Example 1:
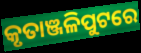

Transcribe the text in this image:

କୃତାଞ୍ଜଳିପୁଟରେ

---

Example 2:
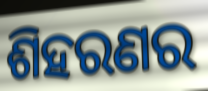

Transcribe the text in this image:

ଶିହରଣର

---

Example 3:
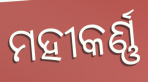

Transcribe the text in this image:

ମହୀକର୍ଣ୍ଣ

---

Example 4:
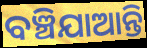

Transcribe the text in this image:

ବଞ୍ଚିଯାଆନ୍ତି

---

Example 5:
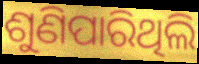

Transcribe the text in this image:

ଶୁଣିପାରିଥିଲି